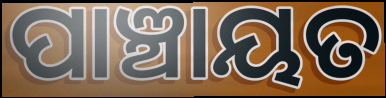
ପାଞ୍ଚାୟତ